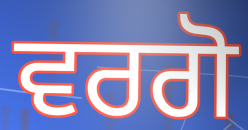
ਵਰਗੋ